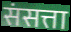
संसत्ता